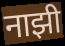
नाझी